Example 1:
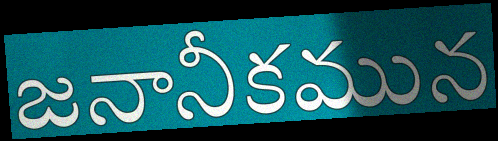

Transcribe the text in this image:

జనానీకమున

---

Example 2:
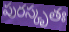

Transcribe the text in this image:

పురస్కృతః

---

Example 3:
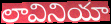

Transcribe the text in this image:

లావినియా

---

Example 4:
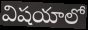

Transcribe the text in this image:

విషయాలో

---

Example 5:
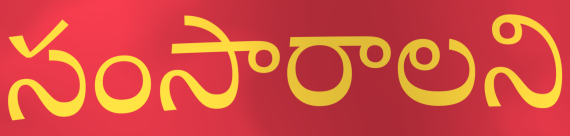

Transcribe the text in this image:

సంసారాలని